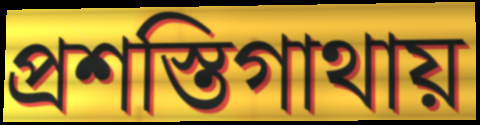
প্রশস্তিগাথায়